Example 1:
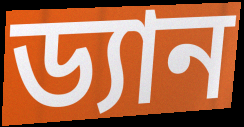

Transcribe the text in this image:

ড্যান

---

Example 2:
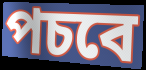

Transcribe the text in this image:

পচবে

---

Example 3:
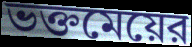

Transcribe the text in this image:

ভক্তমেয়ের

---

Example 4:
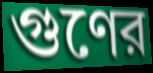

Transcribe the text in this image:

গুণের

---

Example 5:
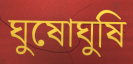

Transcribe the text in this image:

ঘুষোঘুষি